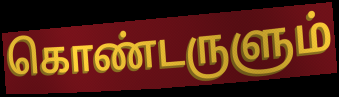
கொண்டருளும்